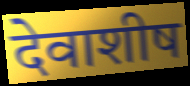
देवाशीष